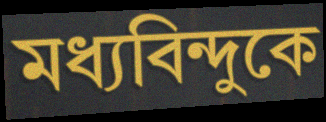
মধ্যবিন্দুকে